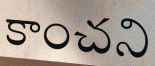
కాంచని